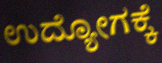
ಉದ್ಯೋಗಕ್ಕೆ